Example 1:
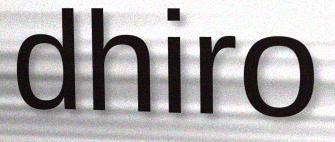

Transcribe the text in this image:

dhiro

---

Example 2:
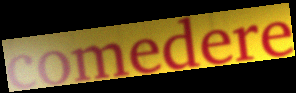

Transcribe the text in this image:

comedere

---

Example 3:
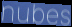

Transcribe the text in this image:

nubes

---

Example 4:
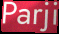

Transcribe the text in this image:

Parji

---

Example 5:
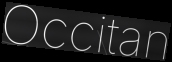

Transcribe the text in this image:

Occitan